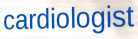
cardiologist